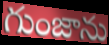
గుంజాను